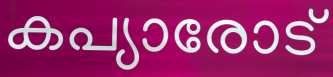
കപ്യാരോട്